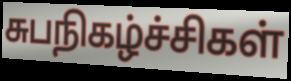
சுபநிகழ்ச்சிகள்